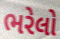
ભરેલો